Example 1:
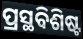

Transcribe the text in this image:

ପ୍ରସ୍ଥବିଶିଷ୍ଟ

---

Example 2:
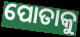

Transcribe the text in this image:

ପୋତାକୁ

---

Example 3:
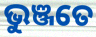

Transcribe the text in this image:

ଭୁଞ୍ଜତେ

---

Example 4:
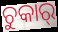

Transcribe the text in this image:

ଚୁକାର୍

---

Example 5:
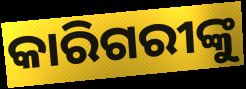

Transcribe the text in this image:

କାରିଗରୀଙ୍କୁ